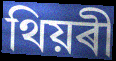
থিয়ৰী